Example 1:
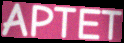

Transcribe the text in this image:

APTET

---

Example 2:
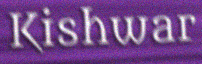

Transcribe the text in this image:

Kishwar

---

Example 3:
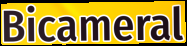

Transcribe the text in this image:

Bicameral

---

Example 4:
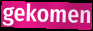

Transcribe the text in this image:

gekomen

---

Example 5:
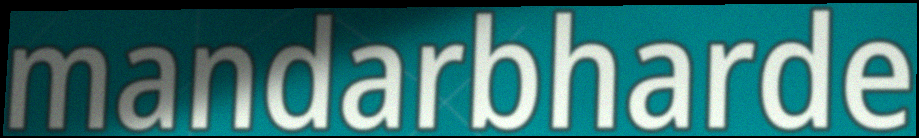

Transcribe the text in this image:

mandarbharde